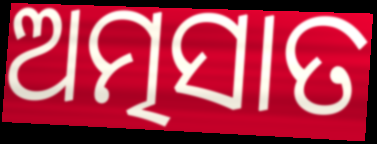
ଅତ୍ମସାତ